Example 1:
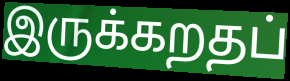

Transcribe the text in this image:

இருக்கறதப்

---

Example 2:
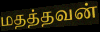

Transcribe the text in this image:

மதத்தவன்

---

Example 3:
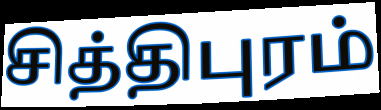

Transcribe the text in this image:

சித்திபுரம்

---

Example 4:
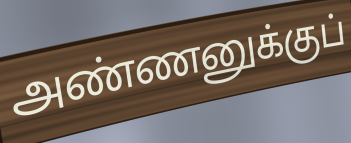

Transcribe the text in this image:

அண்ணனுக்குப்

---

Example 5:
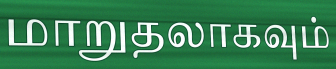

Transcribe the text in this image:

மாறுதலாகவும்